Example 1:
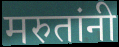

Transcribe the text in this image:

मरुतांनी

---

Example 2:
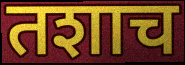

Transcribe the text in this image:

तशाच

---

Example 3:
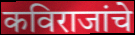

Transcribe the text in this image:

कविराजांचे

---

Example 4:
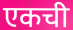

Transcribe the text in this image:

एकची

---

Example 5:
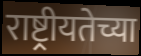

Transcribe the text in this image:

राष्ट्रीयतेच्या